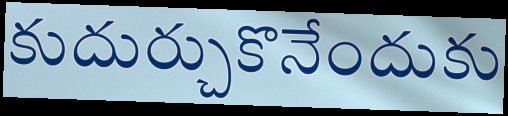
కుదుర్చుకొనేందుకు